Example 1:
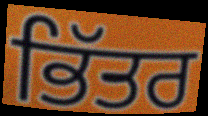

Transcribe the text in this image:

ਭਿੱਤਰ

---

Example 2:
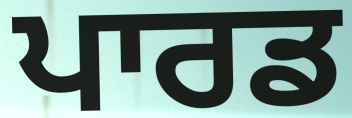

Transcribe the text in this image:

ਪਾਰਡ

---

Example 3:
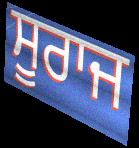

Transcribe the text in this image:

ਸੂਰਾਜ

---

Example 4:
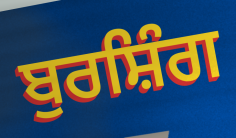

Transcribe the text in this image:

ਬੁਰਸ਼ਿੰਗ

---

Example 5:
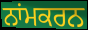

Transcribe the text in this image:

ਨਾਂਮਕਰਨ